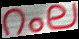
റംല